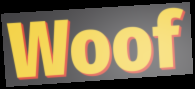
Woof